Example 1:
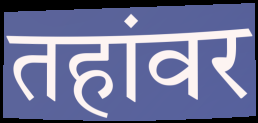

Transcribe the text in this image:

तहांवर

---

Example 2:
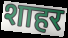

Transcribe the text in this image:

शाहर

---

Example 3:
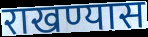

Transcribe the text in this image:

राखण्यास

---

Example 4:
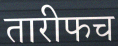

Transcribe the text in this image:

तारीफच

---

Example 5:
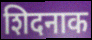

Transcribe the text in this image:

शिदनाक